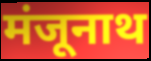
मंजूनाथ